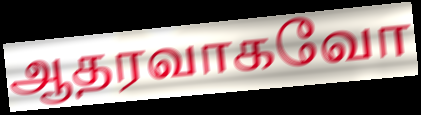
ஆதரவாகவோ